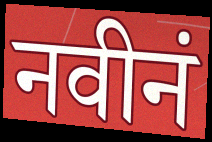
नवीनं